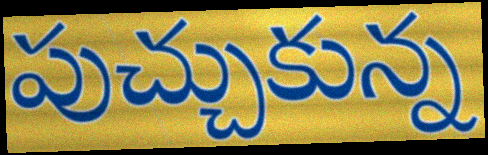
పుచ్చుకున్న